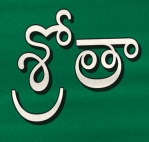
శ్రోతా